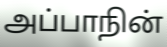
அப்பாநின்